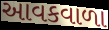
આવકવાળા